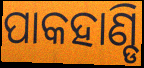
ପାକହାଣ୍ଡି